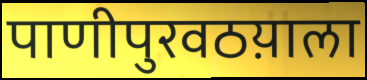
पाणीपुरवठय़ाला